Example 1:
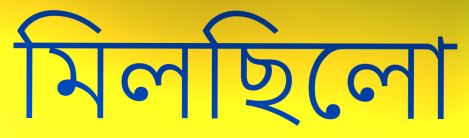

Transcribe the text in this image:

মিলছিলো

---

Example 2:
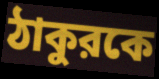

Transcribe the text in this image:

ঠাকুরকে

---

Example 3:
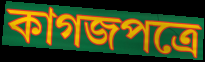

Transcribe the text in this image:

কাগজপত্রে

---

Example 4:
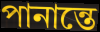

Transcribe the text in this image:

পানান্তে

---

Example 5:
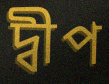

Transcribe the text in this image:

দ্বীপ